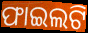
ଫାଇଲଟି